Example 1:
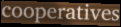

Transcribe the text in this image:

cooperatives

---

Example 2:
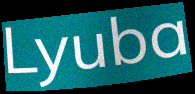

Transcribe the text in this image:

Lyuba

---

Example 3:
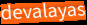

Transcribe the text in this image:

devalayas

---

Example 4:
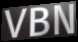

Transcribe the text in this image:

VBN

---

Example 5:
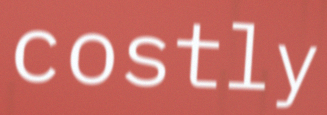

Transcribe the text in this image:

costly